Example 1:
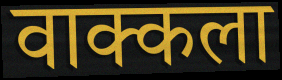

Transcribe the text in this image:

वाक्कला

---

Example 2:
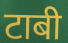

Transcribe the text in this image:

टाबी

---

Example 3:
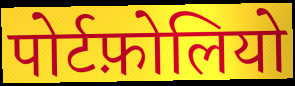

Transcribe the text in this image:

पोर्टफ़ोलियो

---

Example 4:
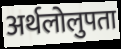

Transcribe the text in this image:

अर्थलोलुपता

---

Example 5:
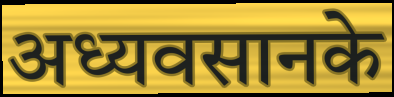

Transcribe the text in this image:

अध्यवसानके